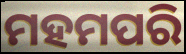
ମହମପରି